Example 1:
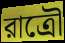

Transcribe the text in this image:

রাত্রৌ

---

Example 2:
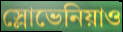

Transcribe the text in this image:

স্লোভেনিয়াও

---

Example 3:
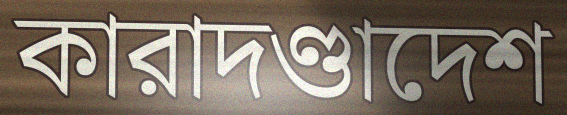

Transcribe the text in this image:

কারাদণ্ডাদেশ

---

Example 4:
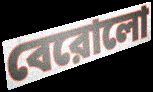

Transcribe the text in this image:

বেরোলো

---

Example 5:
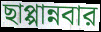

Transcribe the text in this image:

ছাপ্পান্নবার